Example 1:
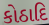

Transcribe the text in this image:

કોઠાદિ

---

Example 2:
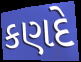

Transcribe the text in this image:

કણદે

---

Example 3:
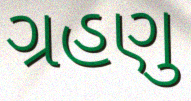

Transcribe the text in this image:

ગ્રહણુ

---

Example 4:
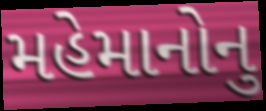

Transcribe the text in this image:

મહેમાનોનુ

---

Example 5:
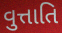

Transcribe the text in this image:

વુત્તાતિ